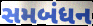
સમબંધન